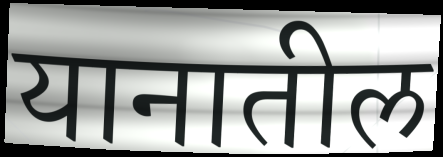
यानातील